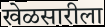
खेळसारीला